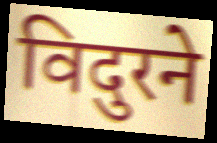
विदुरने